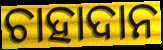
ଚାହାଦାନ